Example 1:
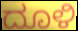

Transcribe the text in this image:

ದೂಳಿ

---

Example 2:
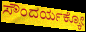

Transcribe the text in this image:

ಸೌಂದರ್ಯಕ್ಕೋ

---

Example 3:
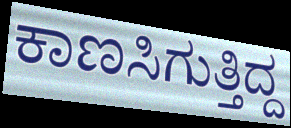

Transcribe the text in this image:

ಕಾಣಸಿಗುತ್ತಿದ್ದ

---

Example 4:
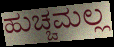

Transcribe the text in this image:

ಹುಚ್ಚಮಲ್ಲ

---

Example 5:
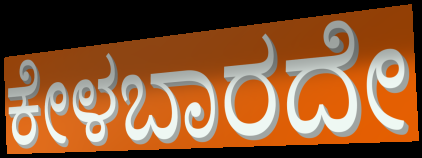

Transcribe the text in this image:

ಕೇಳಬಾರದೇ